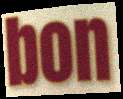
bon